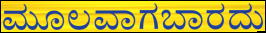
ಮೂಲವಾಗಬಾರದು